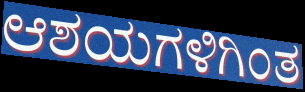
ಆಶಯಗಳಿಗಿಂತ